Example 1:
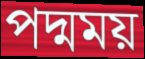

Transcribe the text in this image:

পদ্মময়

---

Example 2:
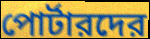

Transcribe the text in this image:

পোর্টারদের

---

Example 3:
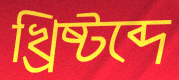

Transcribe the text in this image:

খ্রিষ্টব্দে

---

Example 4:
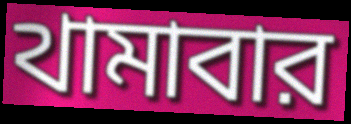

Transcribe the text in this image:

থামাবার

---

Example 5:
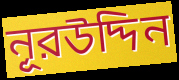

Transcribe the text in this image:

নূরউদ্দিন